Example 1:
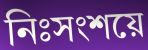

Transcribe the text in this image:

নিঃসংশয়ে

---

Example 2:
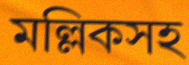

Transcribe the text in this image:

মল্লিকসহ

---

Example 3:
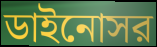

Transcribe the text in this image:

ডাইনোসর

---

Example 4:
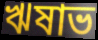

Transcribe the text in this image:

ঋষাভ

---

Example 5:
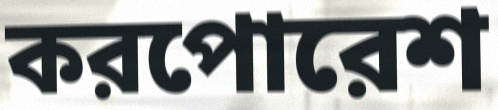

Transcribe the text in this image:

করপোরেশ